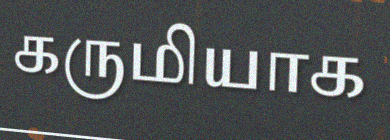
கருமியாக